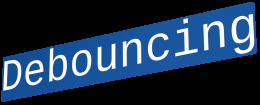
Debouncing